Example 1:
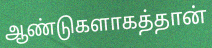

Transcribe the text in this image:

ஆண்டுகளாகத்தான்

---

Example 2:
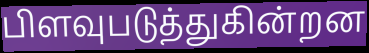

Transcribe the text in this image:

பிளவுபடுத்துகின்றன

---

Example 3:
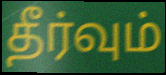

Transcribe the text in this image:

தீர்வும்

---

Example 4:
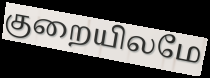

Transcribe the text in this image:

குறையிலமே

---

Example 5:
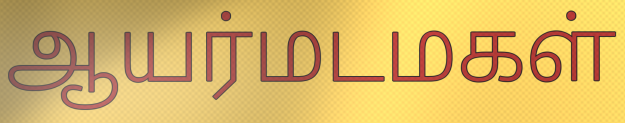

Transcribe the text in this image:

ஆயர்மடமகள்